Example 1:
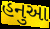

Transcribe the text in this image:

હનુઆ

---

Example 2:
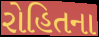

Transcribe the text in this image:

રોહિતના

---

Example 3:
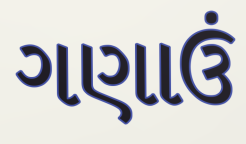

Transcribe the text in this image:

ગણાઉં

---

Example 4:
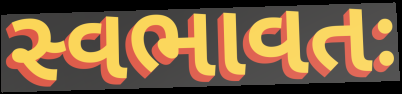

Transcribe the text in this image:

સ્વભાવતઃ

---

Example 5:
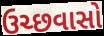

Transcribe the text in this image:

ઉચ્છવાસો